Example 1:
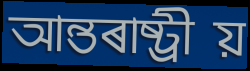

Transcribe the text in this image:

আন্তৰাষ্ট্ৰীয়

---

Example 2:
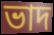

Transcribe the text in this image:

ভাদ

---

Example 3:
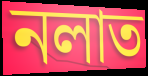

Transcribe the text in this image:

নলাত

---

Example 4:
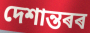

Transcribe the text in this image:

দেশান্তৰৰ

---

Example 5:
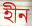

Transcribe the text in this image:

হীন